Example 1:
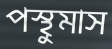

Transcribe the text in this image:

পস্থুমাস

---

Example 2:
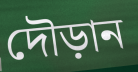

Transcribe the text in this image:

দৌড়ান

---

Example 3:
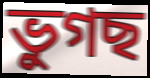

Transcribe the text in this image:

ভুগছ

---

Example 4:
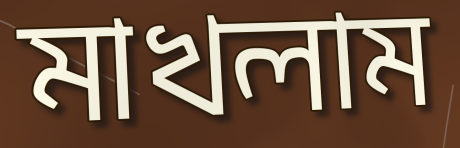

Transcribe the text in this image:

মাখলাম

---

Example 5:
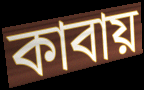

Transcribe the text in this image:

কাবায়